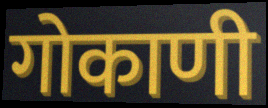
गोकाणी